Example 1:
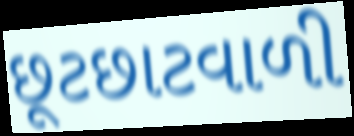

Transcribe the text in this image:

છૂટછાટવાળી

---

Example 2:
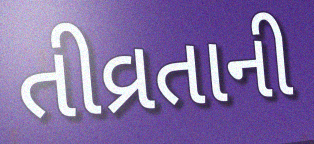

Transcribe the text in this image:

તીવ્રતાની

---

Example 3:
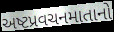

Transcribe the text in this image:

અષ્ટપ્રવચનમાતાનો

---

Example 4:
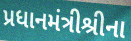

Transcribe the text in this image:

પ્રધાનમંત્રીશ્રીના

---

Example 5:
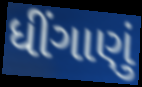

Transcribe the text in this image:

ધીંગાણું